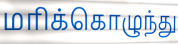
மரிக்கொழுந்து